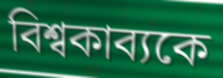
বিশ্বকাব্যকে